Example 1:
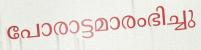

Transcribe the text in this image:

പോരാട്ടമാരംഭിച്ചു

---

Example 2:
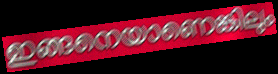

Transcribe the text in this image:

ഇങ്ങനെയാണെങ്കിലും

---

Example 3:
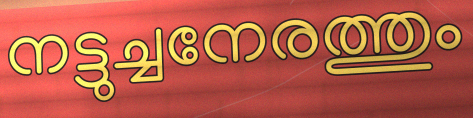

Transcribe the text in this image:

നട്ടുച്ചനേരത്തും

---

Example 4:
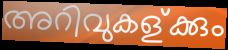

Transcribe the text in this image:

അറിവുകള്ക്കും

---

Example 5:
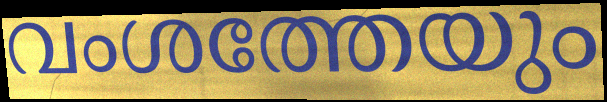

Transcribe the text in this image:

വംശത്തേയും